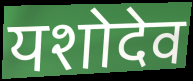
यशोदेव